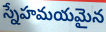
స్నేహమయమైన